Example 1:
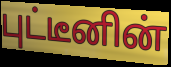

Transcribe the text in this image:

புட்டீனின்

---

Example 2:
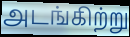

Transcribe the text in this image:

அடங்கிற்று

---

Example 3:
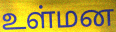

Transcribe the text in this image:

உள்மன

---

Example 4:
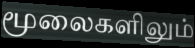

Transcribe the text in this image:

மூலைகளிலும்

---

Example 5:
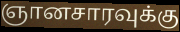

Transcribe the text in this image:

ஞானசாரவுக்கு